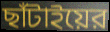
ছাঁটাইয়ের